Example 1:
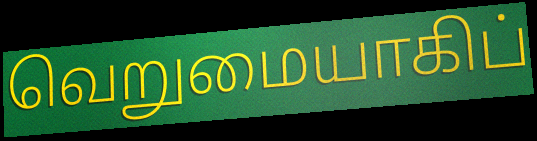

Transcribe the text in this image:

வெறுமையாகிப்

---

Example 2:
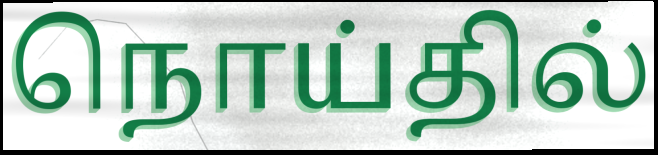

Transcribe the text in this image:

நொய்தில்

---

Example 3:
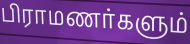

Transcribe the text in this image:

பிராமணர்களும்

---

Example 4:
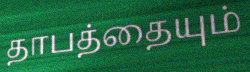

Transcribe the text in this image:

தாபத்தையும்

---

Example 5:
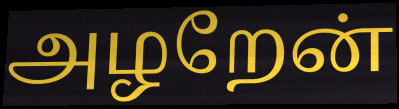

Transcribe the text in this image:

அழறேன்